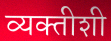
व्यक्‍तीशी